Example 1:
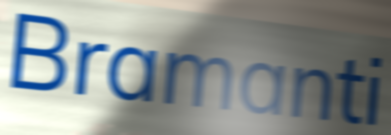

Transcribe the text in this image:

Bramanti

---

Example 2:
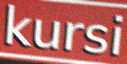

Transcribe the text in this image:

kursi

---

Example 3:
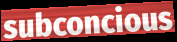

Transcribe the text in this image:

subconcious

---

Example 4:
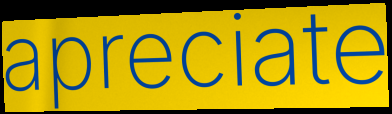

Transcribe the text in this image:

apreciate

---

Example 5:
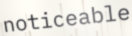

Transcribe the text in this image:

noticeable